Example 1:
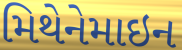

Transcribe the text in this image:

મિથેનેમાઇન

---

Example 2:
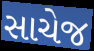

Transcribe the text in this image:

સાચેજ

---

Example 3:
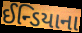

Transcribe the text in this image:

ઈન્ડિયાના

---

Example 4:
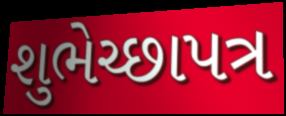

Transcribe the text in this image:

શુભેચ્છાપત્ર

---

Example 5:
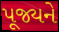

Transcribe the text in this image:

પૂજ્યને